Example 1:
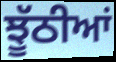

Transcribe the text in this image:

ਝੂੱਠੀਆਂ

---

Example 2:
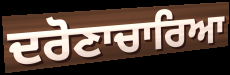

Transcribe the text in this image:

ਦਰੋਣਾਚਾਰਿਆ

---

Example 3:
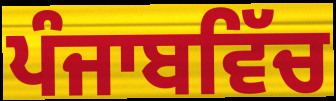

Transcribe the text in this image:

ਪੰਜਾਬਵਿੱਚ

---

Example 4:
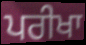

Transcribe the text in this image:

ਪਰੀਖਾ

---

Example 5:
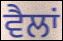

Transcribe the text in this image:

ਵੈਲਾਂ